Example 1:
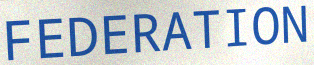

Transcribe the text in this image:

FEDERATION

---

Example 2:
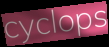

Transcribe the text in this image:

cyclops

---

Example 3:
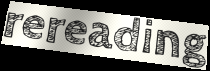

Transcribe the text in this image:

rereading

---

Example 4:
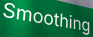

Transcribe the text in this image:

Smoothing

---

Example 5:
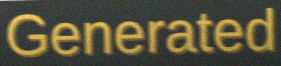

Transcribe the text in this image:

Generated